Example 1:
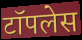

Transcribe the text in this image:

टॉपलेस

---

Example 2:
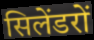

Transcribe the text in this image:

सिलेंडरों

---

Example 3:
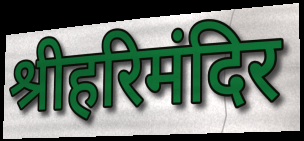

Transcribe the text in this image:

श्रीहरिमंदिर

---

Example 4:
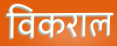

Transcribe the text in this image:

विकराल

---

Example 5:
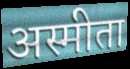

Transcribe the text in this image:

अस्मीता